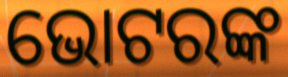
ଭୋଟରଙ୍କ